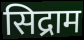
सिद्राम